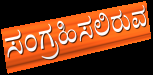
ಸಂಗ್ರಹಿಸಲಿರುವ